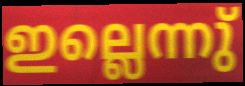
ഇല്ലെന്നു്